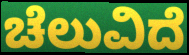
ಚೆಲುವಿದೆ